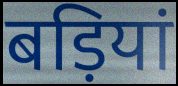
बड़ियां